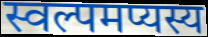
स्वल्पमप्यस्य